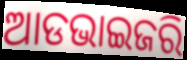
ଆଡଭାଇଜରି